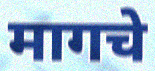
मागचे